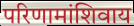
परिणामांशिवाय